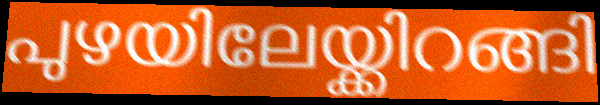
പുഴയിലേയ്ക്കിറങ്ങി